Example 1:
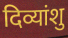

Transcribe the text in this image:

दिव्यांशु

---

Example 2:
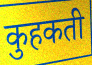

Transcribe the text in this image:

कुहकती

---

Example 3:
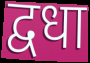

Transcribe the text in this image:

द्वधा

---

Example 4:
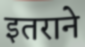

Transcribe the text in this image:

इतराने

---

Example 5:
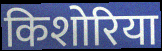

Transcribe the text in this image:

किशोरिया